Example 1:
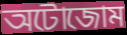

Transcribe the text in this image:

অটোজোম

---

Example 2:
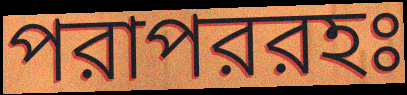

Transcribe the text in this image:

পরাপররহঃ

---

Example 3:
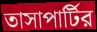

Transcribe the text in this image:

তাসাপার্টির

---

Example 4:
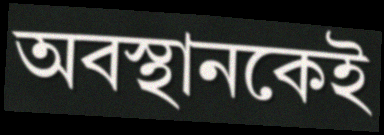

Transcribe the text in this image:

অবস্থানকেই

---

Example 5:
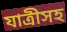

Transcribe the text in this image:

যাত্রীসহ